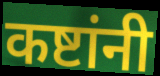
कष्टांनी